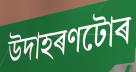
উদাহৰণটোৰ